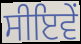
ਸੀਇਵੇਂ